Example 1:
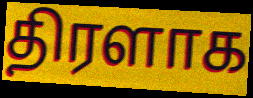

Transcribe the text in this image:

திரளாக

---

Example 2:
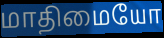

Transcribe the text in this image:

மாதிமையோ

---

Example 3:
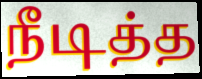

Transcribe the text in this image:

நீடித்த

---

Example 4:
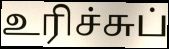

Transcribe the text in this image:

உரிச்சுப்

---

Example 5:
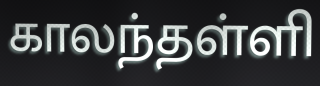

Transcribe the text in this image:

காலந்தள்ளி